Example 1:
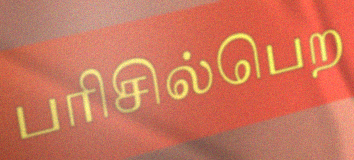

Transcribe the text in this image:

பரிசில்பெற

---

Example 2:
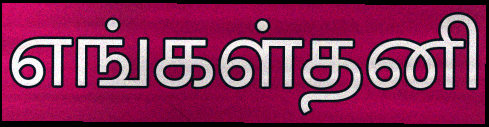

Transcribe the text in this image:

எங்கள்தனி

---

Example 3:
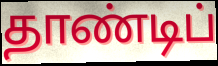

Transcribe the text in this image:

தாண்டிப்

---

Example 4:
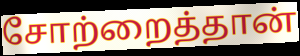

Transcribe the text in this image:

சோற்றைத்தான்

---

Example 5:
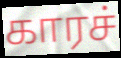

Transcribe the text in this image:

காரச்